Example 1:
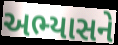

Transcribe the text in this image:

અભ્યાસને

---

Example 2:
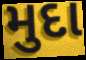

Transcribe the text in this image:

મુદા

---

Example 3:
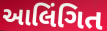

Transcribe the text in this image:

આલિંગિત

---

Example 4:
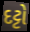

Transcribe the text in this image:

દટ્ટો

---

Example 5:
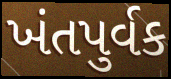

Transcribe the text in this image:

ખંતપુર્વક